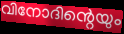
വിനോദിന്റെയും